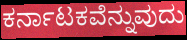
ಕರ್ನಾಟಕವೆನ್ನುವುದು